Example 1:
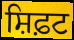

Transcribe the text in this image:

ਸ਼ਿਫ਼ਟ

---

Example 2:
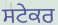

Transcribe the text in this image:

ਸਟੇਕਰ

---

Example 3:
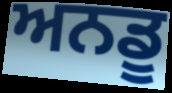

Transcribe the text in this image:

ਅਨਡੂ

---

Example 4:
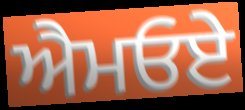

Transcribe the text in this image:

ਐਮਓਏ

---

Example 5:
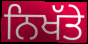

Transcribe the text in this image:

ਨਿਖੱਤੇ